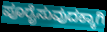
ಪೂರೈಸುವುದಕ್ಕಾಗಿ